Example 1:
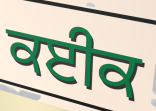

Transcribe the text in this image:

ਕਈਕ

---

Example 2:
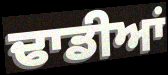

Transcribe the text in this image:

ਢਾਡੀਆਂ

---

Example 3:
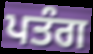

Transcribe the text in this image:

ਪਤੰਗ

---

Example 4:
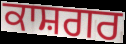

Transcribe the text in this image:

ਕਾਸ਼ਗਰ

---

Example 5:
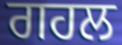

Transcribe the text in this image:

ਗਹਲ